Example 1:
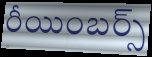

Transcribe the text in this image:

రీయింబర్స్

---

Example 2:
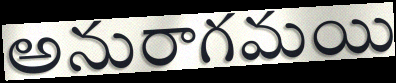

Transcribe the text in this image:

అనురాగమయి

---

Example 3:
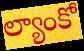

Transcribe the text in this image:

ల్యాంకో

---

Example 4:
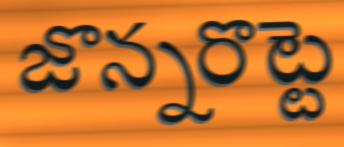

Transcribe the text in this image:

జొన్నరొట్టె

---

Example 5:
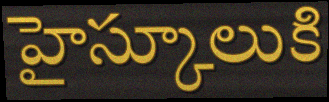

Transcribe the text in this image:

హైస్కూలుకి